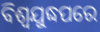
ବିଶ୍ୱଯୁଦ୍ଧପରେ